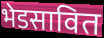
भेडसावित